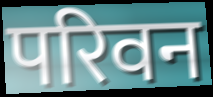
परिवन